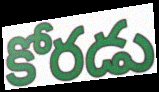
కోరడు